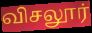
விசலூர்